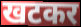
खटकर